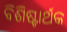
ବିଶିଷ୍ଟାର୍ଥକ